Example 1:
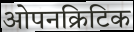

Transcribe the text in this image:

ओपनक्रिटिक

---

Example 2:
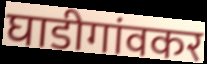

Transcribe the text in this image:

घाडीगांवकर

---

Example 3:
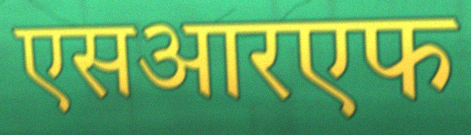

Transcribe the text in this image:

एसआरएफ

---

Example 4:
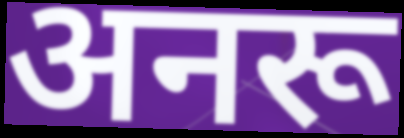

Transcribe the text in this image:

अनरू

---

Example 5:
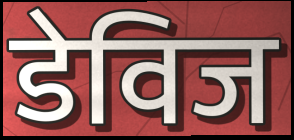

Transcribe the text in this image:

डेविज